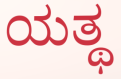
ಯತ್ಥ